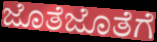
ಜೊತೆಜೊತೆಗೆ